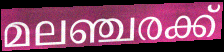
മലഞ്ചരക്ക്